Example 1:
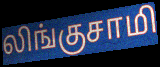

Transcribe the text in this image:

லிங்குசாமி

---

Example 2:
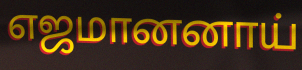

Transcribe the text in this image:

எஜமானனாய்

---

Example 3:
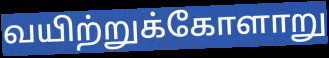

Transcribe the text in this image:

வயிற்றுக்கோளாறு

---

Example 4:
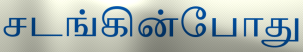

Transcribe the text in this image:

சடங்கின்போது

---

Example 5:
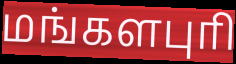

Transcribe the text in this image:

மங்களபுரி